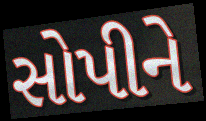
સોપીને